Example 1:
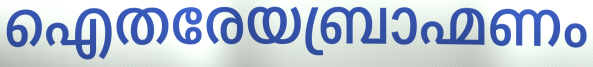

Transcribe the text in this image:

ഐതരേയബ്രാഹ്മണം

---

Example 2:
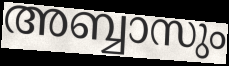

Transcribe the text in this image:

അബ്ബാസും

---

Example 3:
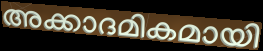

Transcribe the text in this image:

അക്കാദമികമായി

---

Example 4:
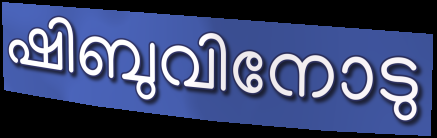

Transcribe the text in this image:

ഷിബുവിനോടു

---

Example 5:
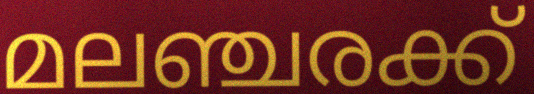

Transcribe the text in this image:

മലഞ്ചരക്ക്